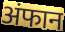
अंफान